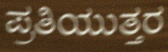
ಪ್ರತಿಯುತ್ತರ